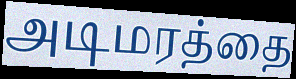
அடிமரத்தை